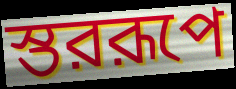
স্তররূপে